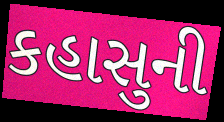
કહાસુની